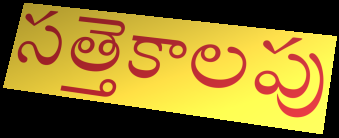
సత్తెకాలపు